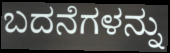
ಬದನೆಗಳನ್ನು